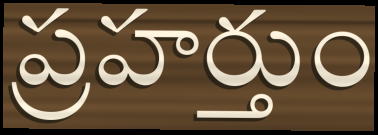
ప్రహర్తుం